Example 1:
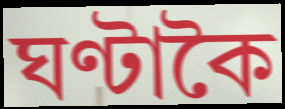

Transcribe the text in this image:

ঘণ্টাকৈ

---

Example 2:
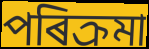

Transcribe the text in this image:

পৰিক্ৰমা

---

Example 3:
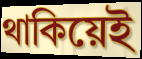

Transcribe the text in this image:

থাকিয়েই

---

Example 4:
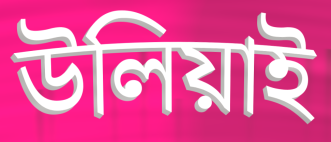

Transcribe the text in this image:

উলিয়াই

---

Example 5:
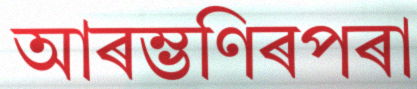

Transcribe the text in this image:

আৰম্ভণিৰপৰা